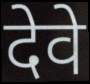
देवे